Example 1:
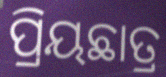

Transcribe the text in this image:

ପ୍ରିୟଛାତ୍ର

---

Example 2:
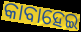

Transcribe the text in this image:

କାବାହେଇ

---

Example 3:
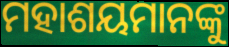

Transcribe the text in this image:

ମହାଶୟମାନଙ୍କୁ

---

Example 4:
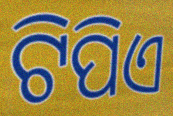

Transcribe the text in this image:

ଟିପିଏ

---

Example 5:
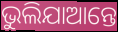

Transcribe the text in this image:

ଭୁଲିଯାଆନ୍ତେ